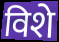
विशे